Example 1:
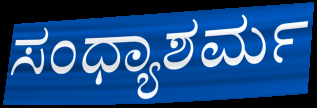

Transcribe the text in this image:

ಸಂಧ್ಯಾಶರ್ಮ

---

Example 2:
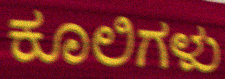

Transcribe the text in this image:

ಕೂಲಿಗಳು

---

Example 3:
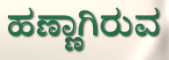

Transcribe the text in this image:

ಹಣ್ಣಾಗಿರುವ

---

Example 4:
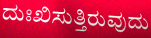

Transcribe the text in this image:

ದುಃಖಿಸುತ್ತಿರುವುದು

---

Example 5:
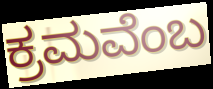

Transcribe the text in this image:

ಕ್ರಮವೆಂಬ